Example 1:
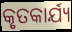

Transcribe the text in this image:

କୃତକାର୍ଯ୍ୟ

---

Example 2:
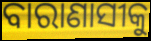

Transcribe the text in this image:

ବାରାଣାସୀକୁ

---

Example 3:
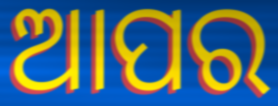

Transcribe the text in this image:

ଆପର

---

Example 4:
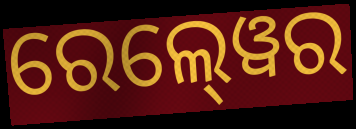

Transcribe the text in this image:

ରେଲ୍‍ୱେର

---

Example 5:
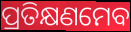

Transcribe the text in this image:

ପ୍ରତିକ୍ଷଣମେବ